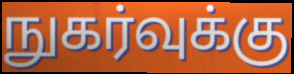
நுகர்வுக்கு